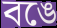
বঙে